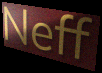
Neff